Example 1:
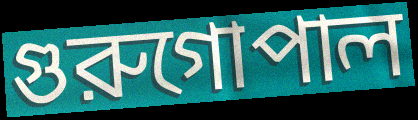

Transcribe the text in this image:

গুরুগোপাল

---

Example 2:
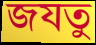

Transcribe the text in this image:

জযতু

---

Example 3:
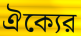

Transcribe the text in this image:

ঐক্যের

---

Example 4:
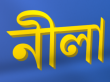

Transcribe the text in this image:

নীলা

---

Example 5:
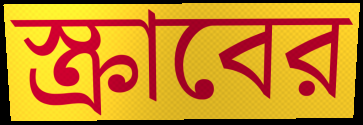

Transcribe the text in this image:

স্ক্রাবের